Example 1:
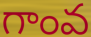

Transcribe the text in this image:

గాంవ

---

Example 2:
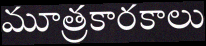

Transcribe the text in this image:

మూత్రకారకాలు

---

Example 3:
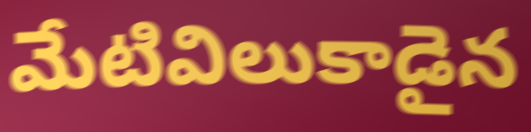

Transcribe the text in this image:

మేటివిలుకాడైన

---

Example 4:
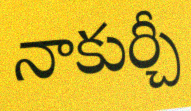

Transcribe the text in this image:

నాకుర్చీ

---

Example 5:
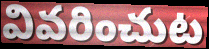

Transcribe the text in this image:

వివరించుట